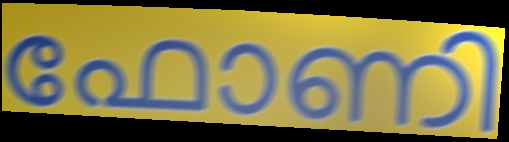
ഫോണി